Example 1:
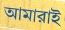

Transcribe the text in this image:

আমারাই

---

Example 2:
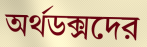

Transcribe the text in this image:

অর্থডক্সদের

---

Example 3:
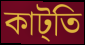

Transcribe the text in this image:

কাট্তি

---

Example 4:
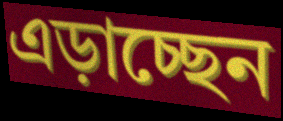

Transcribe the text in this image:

এড়াচ্ছেন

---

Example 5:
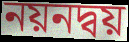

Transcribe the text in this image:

নয়নদ্বয়